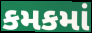
કમકમાં